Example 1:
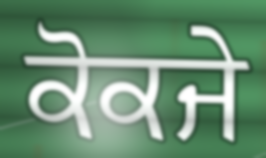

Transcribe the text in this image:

ਕੋਕਜੇ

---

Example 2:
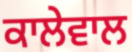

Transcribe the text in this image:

ਕਾਲੇਵਾਲ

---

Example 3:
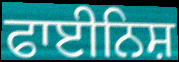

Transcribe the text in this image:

ਫਾਈਨਿਸ਼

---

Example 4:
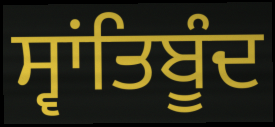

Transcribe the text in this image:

ਸ੍ਵਾਂਤਿਬੂੰਦ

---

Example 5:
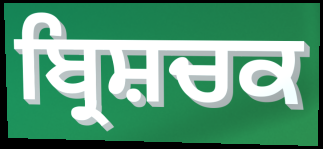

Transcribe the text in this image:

ਬ੍ਰਿਸ਼ਚਕ